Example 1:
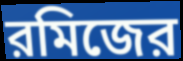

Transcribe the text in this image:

রমিজের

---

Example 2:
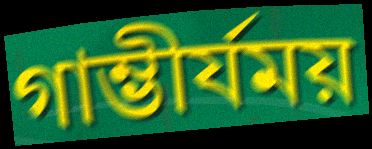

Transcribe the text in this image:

গাম্ভীর্যময়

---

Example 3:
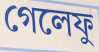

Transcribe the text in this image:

গেলেফু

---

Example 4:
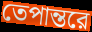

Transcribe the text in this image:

তেপান্তরে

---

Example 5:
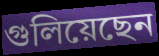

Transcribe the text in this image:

গুলিয়েছেন